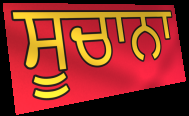
ਸੂਚਾਨਾ